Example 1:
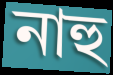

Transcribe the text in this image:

নাহু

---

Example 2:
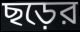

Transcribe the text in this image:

ছড়ের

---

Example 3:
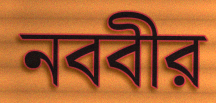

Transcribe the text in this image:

নববীর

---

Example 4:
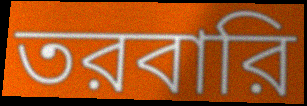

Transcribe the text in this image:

তরবারি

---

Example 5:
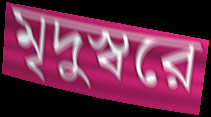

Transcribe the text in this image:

মৃদুস্বরে